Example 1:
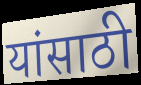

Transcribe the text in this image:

यांसाठी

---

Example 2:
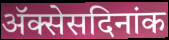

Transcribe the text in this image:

ॲक्सेसदिनांक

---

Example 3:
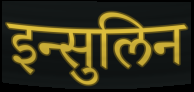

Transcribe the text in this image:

इन्सुलिन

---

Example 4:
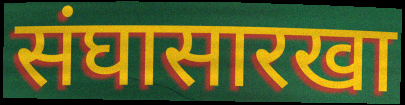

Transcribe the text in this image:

संघासारखा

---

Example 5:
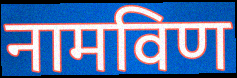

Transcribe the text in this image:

नामविण